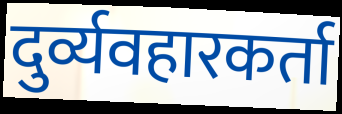
दुर्व्यवहारकर्ता